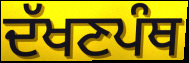
ਦੱਖਣਪੰਥ